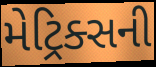
મેટ્રિક્સની